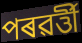
পৰৱৰ্ত্তী